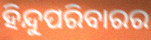
ହିନ୍ଦୁପରିବାରର